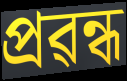
প্ৰৱন্ধ